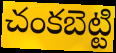
చంకబెట్టి